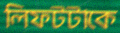
লিফটটাকে